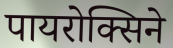
पायरोक्सिने